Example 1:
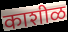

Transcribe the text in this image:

काशीळ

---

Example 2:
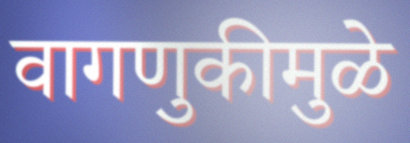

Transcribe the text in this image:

वागणुकीमुळे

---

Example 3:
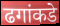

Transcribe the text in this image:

ढगांकडे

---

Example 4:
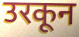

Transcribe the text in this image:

उरकून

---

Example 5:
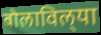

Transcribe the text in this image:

बोलाविल्या